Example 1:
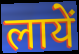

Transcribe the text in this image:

लायें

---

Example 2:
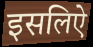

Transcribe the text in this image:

इसलिऐ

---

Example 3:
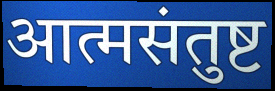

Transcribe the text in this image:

आत्मसंतुष्ट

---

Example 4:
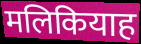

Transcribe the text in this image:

मलिकियाह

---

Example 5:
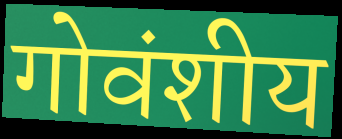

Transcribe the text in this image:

गोवंशीय